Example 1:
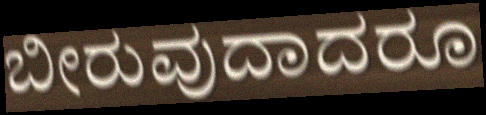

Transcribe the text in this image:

ಬೀರುವುದಾದರೂ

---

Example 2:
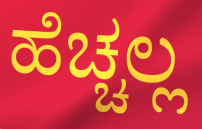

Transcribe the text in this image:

ಹೆಚ್ಚಲ್ಲ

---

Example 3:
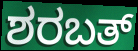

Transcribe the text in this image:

ಶರಬತ್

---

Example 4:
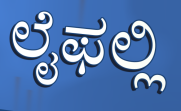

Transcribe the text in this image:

ಲೈಫಲ್ಲಿ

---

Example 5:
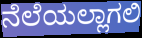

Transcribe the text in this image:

ನೆಲೆಯಲ್ಲಾಗಲಿ